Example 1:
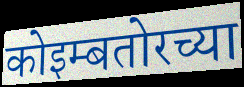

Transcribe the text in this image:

कोइम्बतोरच्या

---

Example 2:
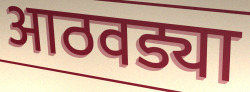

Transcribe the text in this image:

आठवड्या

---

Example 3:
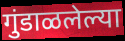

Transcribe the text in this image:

गुंडाळलेल्या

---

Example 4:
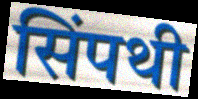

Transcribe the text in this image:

सिंपथी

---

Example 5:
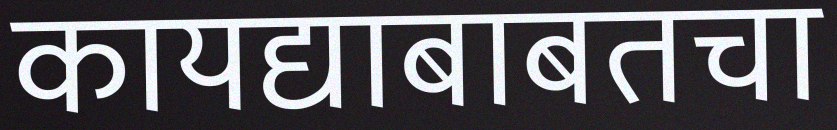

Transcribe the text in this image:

कायद्याबाबतचा